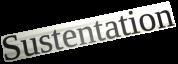
Sustentation